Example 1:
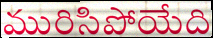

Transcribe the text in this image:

మురిసిపోయేది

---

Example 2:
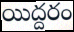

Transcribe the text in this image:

యిద్దరం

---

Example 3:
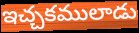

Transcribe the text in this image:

ఇచ్చకములాడు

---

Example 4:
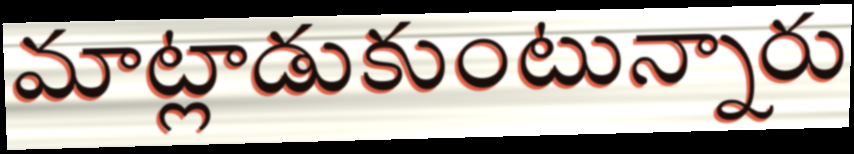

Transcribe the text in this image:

మాట్లాడుకుంటున్నారు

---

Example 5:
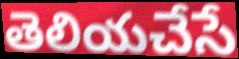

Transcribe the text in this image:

తెలియచేసే